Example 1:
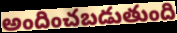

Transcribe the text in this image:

అందించబడుతుంది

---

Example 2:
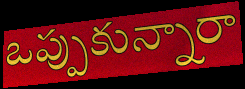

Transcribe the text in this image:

ఒప్పుకున్నారా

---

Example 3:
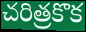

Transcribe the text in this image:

చరిత్రకొక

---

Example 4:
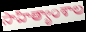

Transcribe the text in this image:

సాహిత్యాంశాల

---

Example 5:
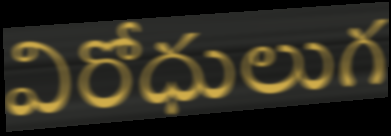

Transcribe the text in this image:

విరోధులుగ